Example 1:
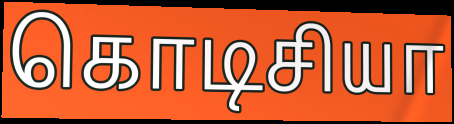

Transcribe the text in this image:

கொடிசியா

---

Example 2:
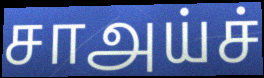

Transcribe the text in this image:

சாஅய்ச்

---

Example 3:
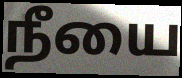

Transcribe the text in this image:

நீயை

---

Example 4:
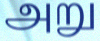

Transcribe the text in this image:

அறு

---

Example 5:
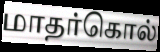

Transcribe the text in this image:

மாதர்கொல்